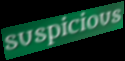
suspicious